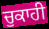
ਚੁਕਾਹੀ